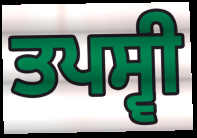
ਤਪਸ੍ਵੀ